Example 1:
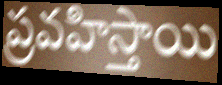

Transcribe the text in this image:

ప్రవహిస్తాయి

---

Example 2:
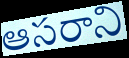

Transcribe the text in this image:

ఆసరాని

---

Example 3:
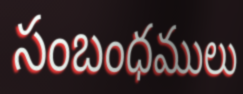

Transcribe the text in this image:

సంబంధములు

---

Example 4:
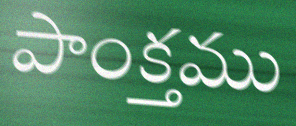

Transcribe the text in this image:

పాంక్తము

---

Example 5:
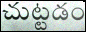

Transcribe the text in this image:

చుట్టడం